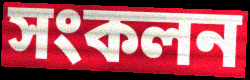
সংকলন